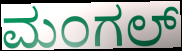
ಮಂಗಲ್